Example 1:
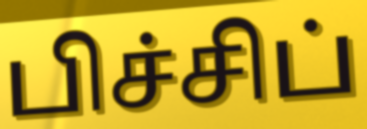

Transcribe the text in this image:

பிச்சிப்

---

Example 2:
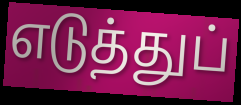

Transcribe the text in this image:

எடுத்துப்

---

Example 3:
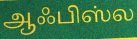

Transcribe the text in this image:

ஆஃபிஸ்ல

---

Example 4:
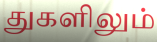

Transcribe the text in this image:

துகளிலும்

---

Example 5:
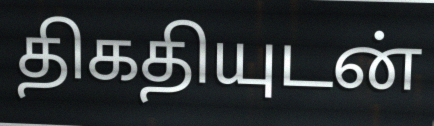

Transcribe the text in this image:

திகதியுடன்